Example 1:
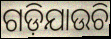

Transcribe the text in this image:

ଗଡ଼ିଯାଉଚି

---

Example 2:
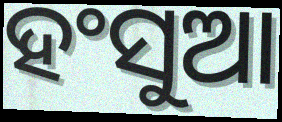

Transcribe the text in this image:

ହଂସୁଆ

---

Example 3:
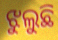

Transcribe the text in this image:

ଝୁଲୁଛି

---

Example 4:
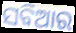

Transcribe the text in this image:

ସବିଆର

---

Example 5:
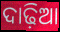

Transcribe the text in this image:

ଦାଢ଼ିଆ